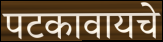
पटकावायचे